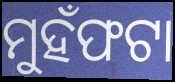
ମୁହଁଫଟା